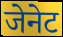
जेनेट